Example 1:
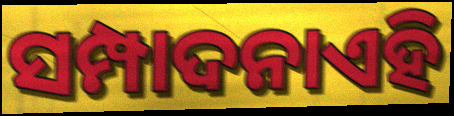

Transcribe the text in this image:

ସମ୍ପାଦନାଏହି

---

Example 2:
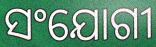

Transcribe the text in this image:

ସଂଯୋଗୀ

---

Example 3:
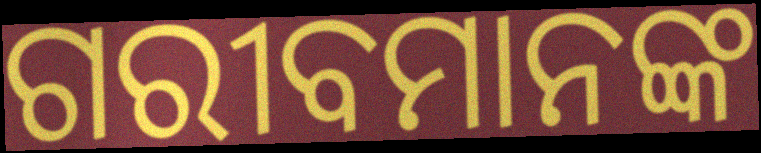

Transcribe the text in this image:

ଗରୀବମାନଙ୍କ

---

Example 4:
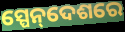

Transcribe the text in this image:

ସ୍ପେନ୍‌ଦେଶରେ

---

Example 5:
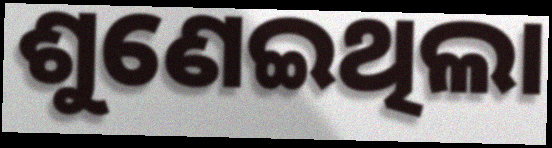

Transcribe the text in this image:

ଶୁଣେଇଥିଲା